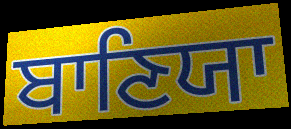
ਬਾਣਿਯਾ